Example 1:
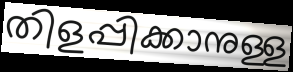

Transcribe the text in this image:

തിളപ്പിക്കാനുള്ള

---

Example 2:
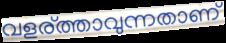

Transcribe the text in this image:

വളര്ത്താവുന്നതാണ്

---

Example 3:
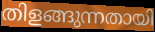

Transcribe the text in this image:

തിളങ്ങുന്നതായി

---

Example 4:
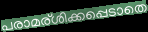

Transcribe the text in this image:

പരാമര്ശിക്കപ്പെടാതെ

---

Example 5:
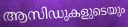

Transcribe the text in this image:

ആസിഡുകളുടെയും